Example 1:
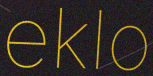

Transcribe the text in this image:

eklo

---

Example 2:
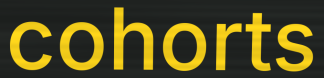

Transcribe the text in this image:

cohorts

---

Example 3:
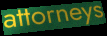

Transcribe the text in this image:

attorneys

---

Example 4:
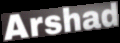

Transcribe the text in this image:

Arshad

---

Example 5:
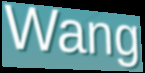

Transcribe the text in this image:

Wang